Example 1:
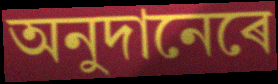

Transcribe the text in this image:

অনুদানেৰে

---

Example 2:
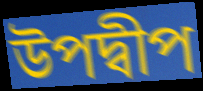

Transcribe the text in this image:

উপদ্বীপ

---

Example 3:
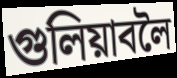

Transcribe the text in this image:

গুলিয়াবলৈ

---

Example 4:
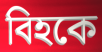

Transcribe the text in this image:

বিহকে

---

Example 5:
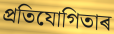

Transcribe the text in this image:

প্ৰতিযোগিতাৰ